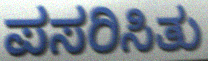
ಪಸರಿಸಿತು